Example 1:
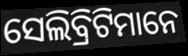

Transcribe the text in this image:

ସେଲିବ୍ରିଟିମାନେ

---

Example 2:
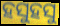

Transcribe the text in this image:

ହସୁହସୁ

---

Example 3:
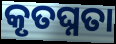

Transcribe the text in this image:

କୃତଘ୍ନତା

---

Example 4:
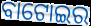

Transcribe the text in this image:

ବାଟୋଇର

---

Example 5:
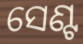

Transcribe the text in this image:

ସେଣ୍ଟ